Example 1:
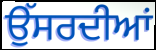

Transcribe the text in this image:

ਉੱਸਰਦੀਆਂ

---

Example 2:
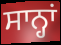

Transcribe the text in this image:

ਸਾਨ੍ਹਾਂ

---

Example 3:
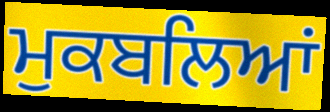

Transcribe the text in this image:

ਮੁਕਬਲਿਆਂ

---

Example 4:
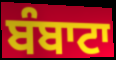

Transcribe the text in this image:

ਬੰਬਾਟਾ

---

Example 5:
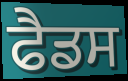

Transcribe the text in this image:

ਫੈਡਸ